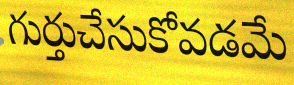
గుర్తుచేసుకోవడమే